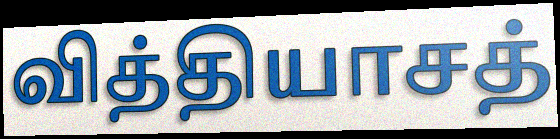
வித்தியாசத்